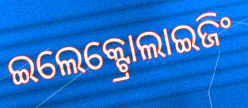
ଇଲେକ୍ଟ୍ରୋଲାଇଜିଂ